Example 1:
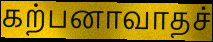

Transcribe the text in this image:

கற்பனாவாதச்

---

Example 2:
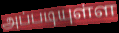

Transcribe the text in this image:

அப்படியுள்ள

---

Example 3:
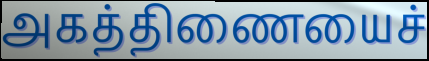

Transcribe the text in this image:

அகத்திணையைச்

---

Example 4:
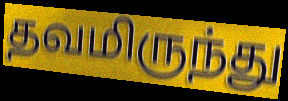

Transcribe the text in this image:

தவமிருந்து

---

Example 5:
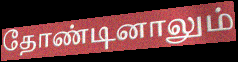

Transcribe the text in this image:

தோண்டினாலும்